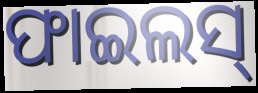
ଫାଇଲସ୍